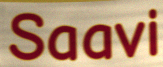
Saavi